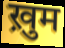
ख़ुम